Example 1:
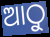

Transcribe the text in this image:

ଆଠୁ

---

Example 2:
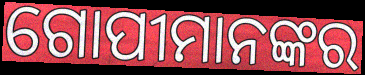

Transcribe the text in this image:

ଗୋପୀମାନଙ୍କର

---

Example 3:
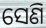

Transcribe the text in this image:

ସେଣି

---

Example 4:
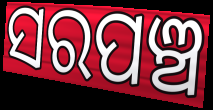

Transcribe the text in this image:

ସରପଞ୍ଚ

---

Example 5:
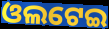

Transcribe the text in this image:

ଓଲଟେଇ